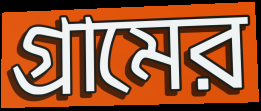
গ্রামের